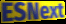
ESNext